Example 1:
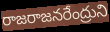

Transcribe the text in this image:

రాజరాజనరేంద్రుని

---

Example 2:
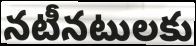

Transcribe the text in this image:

నటీనటులకు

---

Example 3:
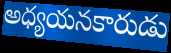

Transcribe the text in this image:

అధ్యయనకారుడు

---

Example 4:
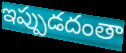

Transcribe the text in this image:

ఇప్పుడదంతా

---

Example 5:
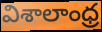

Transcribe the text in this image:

విశాలాంధ్ర